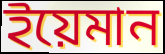
ইয়েমান